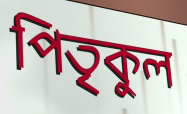
পিতৃকুল